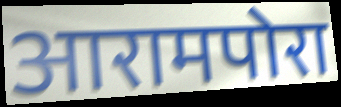
आरामपोरा